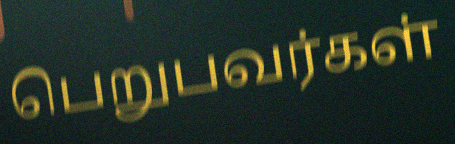
பெறுபவர்கள்